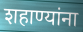
शहाण्यांना